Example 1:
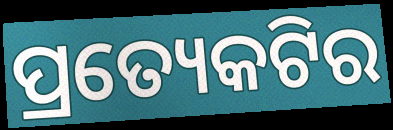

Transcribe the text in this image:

ପ୍ରତ୍ୟେକଟିର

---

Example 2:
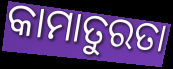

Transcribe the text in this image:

କାମାତୁରତା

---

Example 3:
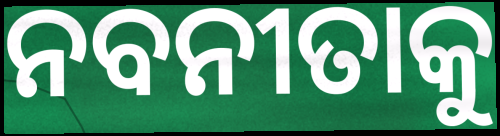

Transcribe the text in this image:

ନବନୀତାକୁ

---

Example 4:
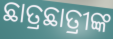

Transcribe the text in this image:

ଛାତ୍ରଛାତ୍ରୀଙ୍କ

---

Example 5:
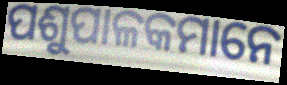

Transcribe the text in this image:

ପଶୁପାଳକମାନେ